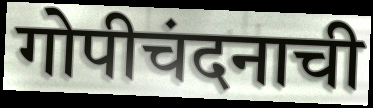
गोपीचंदनाची